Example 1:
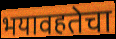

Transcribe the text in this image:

भयावहतेचा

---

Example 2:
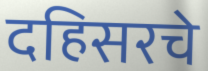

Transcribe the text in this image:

दहिसरचे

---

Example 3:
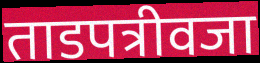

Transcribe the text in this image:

ताडपत्रीवजा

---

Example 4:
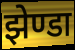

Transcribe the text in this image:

झेण्डा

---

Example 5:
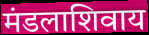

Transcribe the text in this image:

मंडलाशिवाय